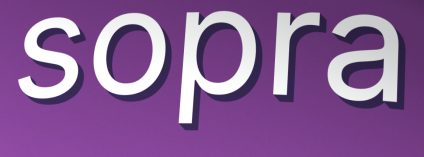
sopra